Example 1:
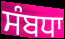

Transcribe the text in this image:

ਸੰਬਧਾ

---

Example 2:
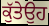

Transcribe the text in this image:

ਕੁੱਤੇਉਹ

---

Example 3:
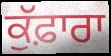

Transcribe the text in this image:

ਕੁੱਫ਼ਾਰਾ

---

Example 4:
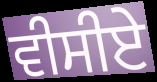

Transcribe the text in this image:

ਵੀਸੀਏ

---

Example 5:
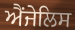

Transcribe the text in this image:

ਐਂਜੇਲਿਸ